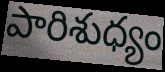
పారిశుధ్యం